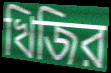
খিজির